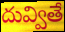
దువ్వితే